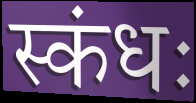
स्कंधः